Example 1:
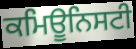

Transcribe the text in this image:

ਕਮਿਊਨਿਸਟੀ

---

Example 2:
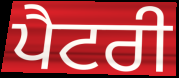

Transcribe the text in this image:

ਪੈਟਰੀ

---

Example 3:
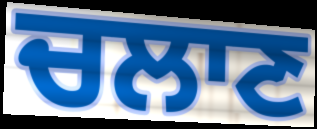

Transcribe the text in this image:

ਚਲਾਣ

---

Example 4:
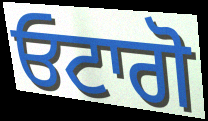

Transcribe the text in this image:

ਓਟਾਗੋ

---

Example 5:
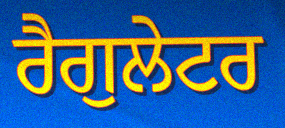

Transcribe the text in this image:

ਰੈਗੁਲੇਟਰ